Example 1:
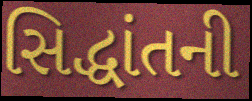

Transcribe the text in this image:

સિદ્ધાંતની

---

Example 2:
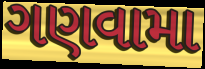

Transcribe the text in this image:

ગણવામા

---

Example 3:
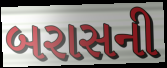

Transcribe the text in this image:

બરાસની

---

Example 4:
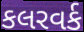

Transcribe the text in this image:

કલરવર્ક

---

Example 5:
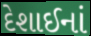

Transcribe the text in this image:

દેશાઈનાં